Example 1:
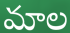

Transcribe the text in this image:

మాల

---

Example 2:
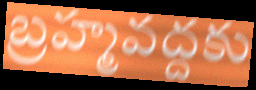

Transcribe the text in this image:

బ్రహ్మవద్దకు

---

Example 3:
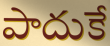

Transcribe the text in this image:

పాదుకే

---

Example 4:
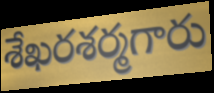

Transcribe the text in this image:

శేఖరశర్మగారు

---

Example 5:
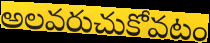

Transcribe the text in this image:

అలవరుచుకోవటం